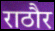
राठौर